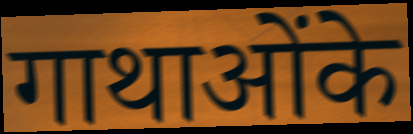
गाथाओंके